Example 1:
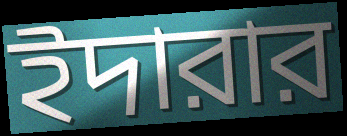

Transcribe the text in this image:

ইদারার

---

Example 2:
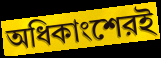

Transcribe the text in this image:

অধিকাংশেরই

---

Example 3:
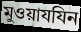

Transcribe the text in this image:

মুওয়াযযিন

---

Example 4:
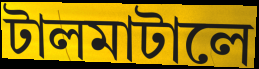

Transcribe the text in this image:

টালমাটালে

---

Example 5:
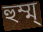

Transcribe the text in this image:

হুম্ম্